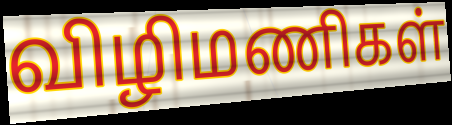
விழிமணிகள்